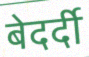
बेदर्दी